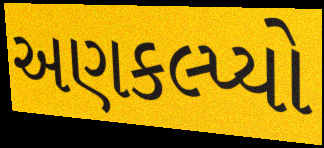
અણકલ્પ્યો